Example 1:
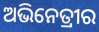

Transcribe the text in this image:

ଅଭିନେତ୍ରୀର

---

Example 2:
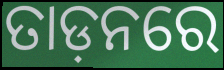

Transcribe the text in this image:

ତାଡ଼ନରେ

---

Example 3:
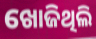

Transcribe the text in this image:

ଖୋଜିଥିଲି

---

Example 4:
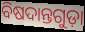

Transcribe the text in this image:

ବିଷଦାନ୍ତଗୁଡ଼ା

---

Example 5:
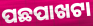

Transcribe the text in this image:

ପଛପାଖଟା